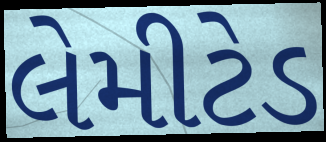
લેમીટેડ